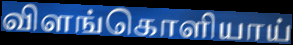
விளங்கொளியாய்